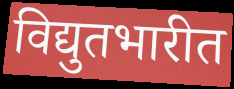
विद्युतभारीत